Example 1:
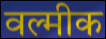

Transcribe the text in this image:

वल्मीक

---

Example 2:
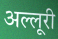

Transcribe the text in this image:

अल्लूरी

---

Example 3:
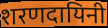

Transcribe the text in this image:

शरणदायिनी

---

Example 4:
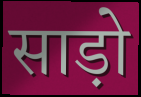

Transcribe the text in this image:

साड़ो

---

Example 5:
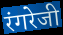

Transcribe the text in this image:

रंगरेजी